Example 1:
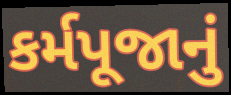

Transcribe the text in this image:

કર્મપૂજાનું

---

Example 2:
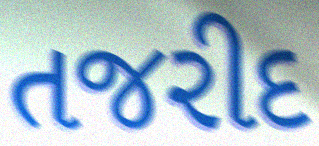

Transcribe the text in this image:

તજરીદ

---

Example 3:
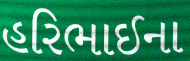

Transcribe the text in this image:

હરિભાઈના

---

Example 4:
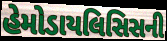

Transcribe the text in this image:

હેમોડાયલિસિસની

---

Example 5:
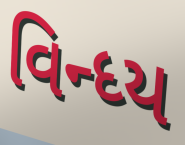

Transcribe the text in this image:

વિન્ધ્ય